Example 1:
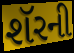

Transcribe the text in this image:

શૅરની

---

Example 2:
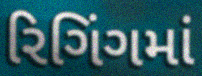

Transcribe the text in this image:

રિગિંગમાં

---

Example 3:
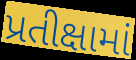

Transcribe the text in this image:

પ્રતીક્ષામાં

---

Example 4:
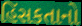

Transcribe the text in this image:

હિંસકતાનો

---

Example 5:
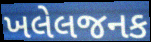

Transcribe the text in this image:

ખલેલજનક